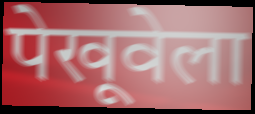
पेखूवेला